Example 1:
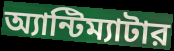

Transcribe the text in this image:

অ্যান্টিম্যাটার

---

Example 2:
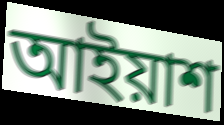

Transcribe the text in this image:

আইয়াশ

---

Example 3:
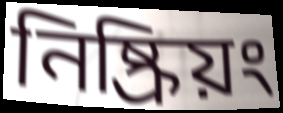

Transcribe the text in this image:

নিষ্ক্রিয়ং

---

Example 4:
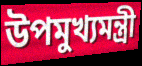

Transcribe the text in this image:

উপমুখ্যমন্ত্রী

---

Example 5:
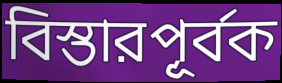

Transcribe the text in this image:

বিস্তারপূর্বক